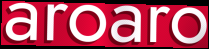
aroaro